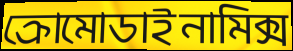
ক্রোমোডাইনামিক্স